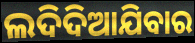
ଲଦିଦିଆଯିବାର